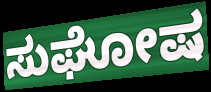
ಸುಘೋಷ